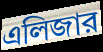
এলিজার